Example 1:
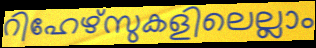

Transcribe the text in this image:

റിഹേഴ്സുകളിലെല്ലാം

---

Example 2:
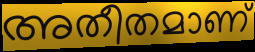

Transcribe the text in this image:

അതീതമാണ്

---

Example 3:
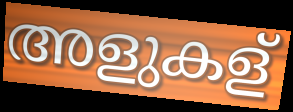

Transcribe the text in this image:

അളുകള്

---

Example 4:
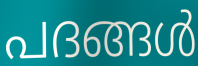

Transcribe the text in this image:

പദങ്ങൾ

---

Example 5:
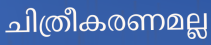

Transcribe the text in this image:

ചിത്രീകരണമല്ല